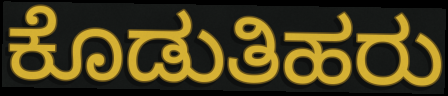
ಕೊಡುತಿಹರು